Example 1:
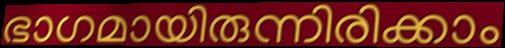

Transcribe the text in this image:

ഭാഗമായിരുന്നിരിക്കാം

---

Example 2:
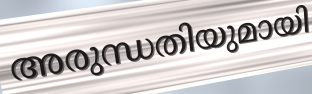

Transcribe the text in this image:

അരുന്ധതിയുമായി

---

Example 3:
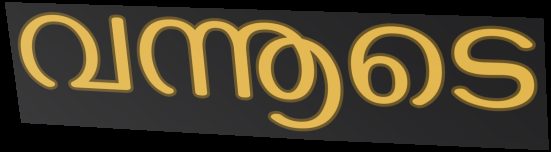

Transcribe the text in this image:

വന്നൂടെ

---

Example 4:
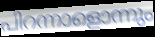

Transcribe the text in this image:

പിറന്നാളൊന്നും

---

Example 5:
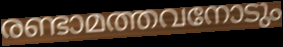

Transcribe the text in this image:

രണ്ടാമത്തവനോടും